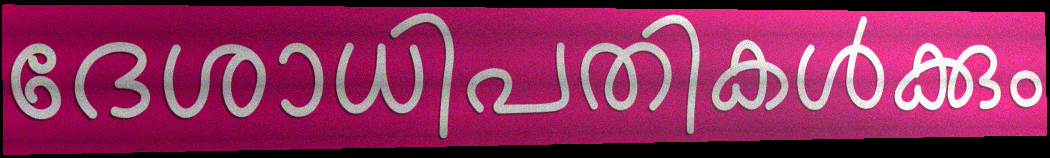
ദേശാധിപതികൾക്കും